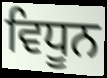
ਵਿਧੂਨ